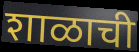
शाळाची